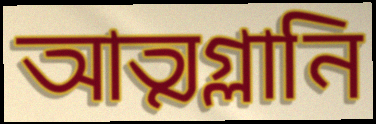
আত্মগ্লানি